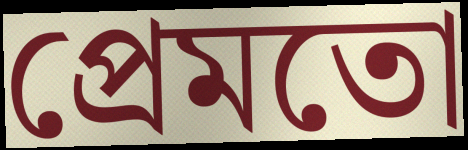
প্ৰেমতো